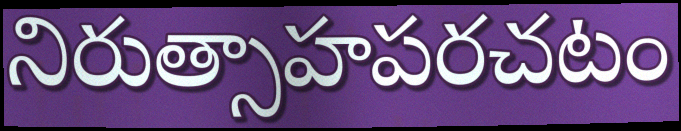
నిరుత్సాహపరచటం